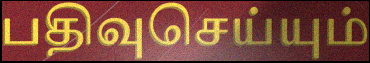
பதிவுசெய்யும்